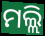
ମଲ୍ଲି